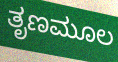
ತೃಣಮೂಲ